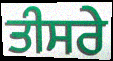
ਤੀਸਰੇ